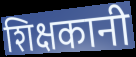
शिक्षकानी